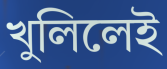
খুলিলেই